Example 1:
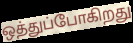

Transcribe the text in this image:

ஒத்துப்போகிறது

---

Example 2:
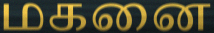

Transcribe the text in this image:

மகனை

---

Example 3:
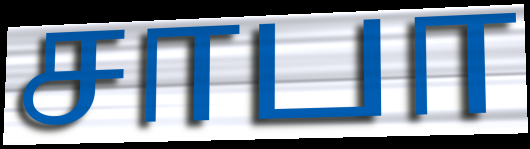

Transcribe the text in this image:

சாபா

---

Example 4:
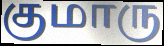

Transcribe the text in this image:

குமாரு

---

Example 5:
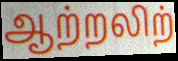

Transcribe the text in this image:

ஆற்றலிற்